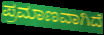
ಪ್ರಮಾಣವಾಗಿದೆ